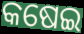
କଷେଇ